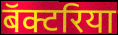
बॅक्टरिया